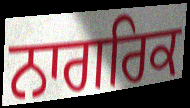
ਨਾਗਰਿਕ